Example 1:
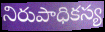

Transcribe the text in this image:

నిరుపాధికస్య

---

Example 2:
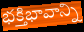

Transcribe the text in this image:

భక్తిభావాన్ని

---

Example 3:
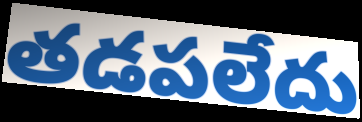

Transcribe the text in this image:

తడపలేదు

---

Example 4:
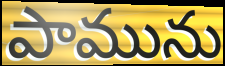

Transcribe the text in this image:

పామును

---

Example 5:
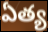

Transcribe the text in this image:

ఏత్య